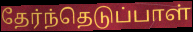
தேர்ந்தெடுப்பாள்